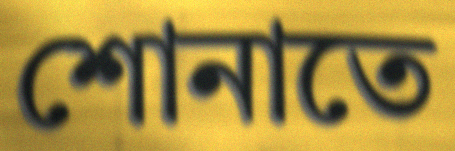
শোনাতে